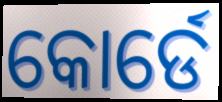
କୋର୍ଡେ